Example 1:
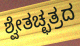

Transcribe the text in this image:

ಶ್ವೇತಚ್ಛತ್ರದ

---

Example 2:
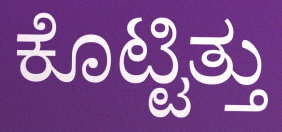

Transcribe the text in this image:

ಕೊಟ್ಟಿತ್ತು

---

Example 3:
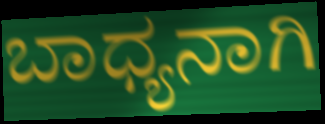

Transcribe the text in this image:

ಬಾಧ್ಯನಾಗಿ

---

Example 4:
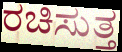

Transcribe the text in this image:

ರಚಿಸುತ್ತ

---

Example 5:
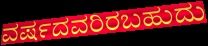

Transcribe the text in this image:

ವರ್ಷದವರಿರಬಹುದು